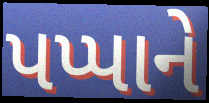
પપ્પાને